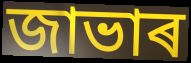
জাভাৰ